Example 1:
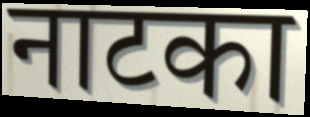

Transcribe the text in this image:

नाटका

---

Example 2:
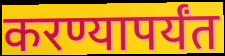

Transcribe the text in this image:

करण्यापर्यंत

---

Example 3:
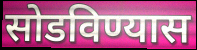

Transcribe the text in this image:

सोडविण्यास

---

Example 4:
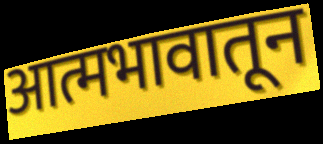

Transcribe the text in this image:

आत्मभावातून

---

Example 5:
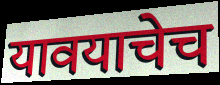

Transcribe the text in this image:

यावयाचेच